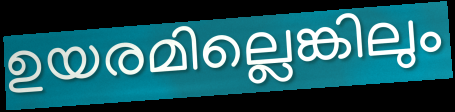
ഉയരമില്ലെങ്കിലും